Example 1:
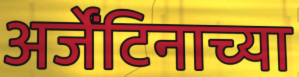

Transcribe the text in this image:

अर्जेंटिनाच्या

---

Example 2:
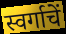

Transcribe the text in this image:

स्वर्गाचें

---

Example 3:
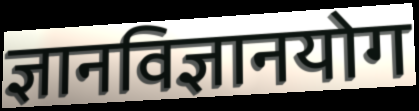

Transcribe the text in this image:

ज्ञानविज्ञानयोग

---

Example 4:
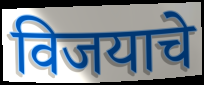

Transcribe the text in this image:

विजयाचे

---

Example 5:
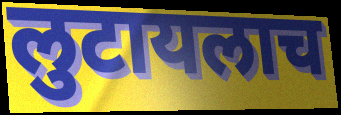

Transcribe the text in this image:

लुटायलाच